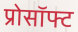
प्रोसॉफ्ट